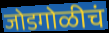
जोडगोळीचं